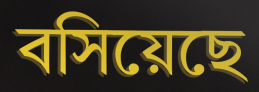
বসিয়েছে